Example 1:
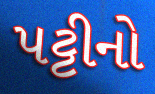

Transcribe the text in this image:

પટ્ટીનો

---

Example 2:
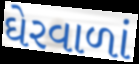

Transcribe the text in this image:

ઘેરવાળાં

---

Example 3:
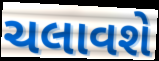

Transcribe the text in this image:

ચલાવશે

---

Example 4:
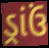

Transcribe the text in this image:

ડ્રાંઉં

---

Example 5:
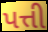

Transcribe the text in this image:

પત્તી